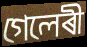
গেলেৰী